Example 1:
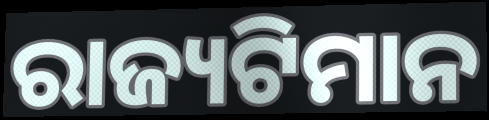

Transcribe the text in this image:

ରାଜ୍ୟଟିମାନ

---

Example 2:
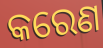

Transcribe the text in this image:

କରେଣ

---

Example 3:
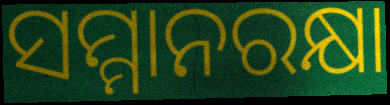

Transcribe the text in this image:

ସମ୍ମାନରକ୍ଷା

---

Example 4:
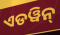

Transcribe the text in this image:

ଏଡୱିନ୍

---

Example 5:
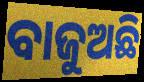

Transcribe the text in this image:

ବାଜୁଅଛି